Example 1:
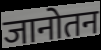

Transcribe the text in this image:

जानोतन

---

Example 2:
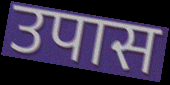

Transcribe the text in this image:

उपास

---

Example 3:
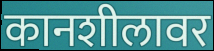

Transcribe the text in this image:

कानशीलावर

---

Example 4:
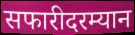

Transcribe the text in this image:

सफारीदरम्यान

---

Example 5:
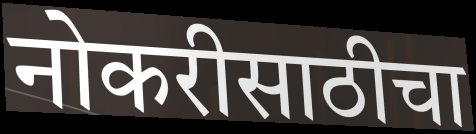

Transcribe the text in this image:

नोकरीसाठीचा